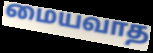
மையவாத